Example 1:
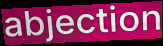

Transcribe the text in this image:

abjection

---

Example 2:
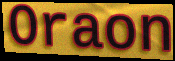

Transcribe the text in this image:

Oraon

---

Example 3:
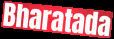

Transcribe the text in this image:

Bharatada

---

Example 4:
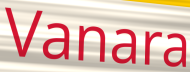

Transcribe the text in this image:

Vanara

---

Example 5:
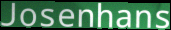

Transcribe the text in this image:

Josenhans